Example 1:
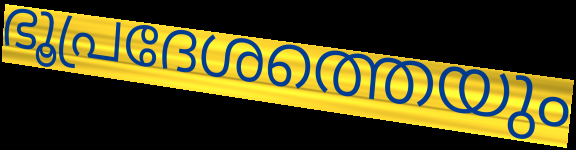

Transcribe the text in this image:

ഭൂപ്രദേശത്തെയും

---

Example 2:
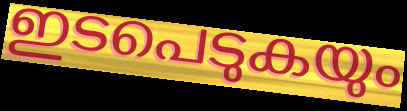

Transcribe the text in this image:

ഇടപെടുകയും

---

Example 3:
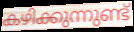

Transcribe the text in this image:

കഴിക്കുന്നുണ്ട്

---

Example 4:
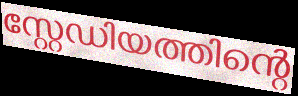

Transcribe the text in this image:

സ്റ്റേഡിയത്തിന്റെ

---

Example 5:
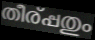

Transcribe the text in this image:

തീര്പ്പതും